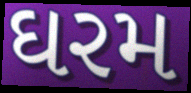
ઘરમ